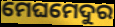
ମେଘମେଦୁର